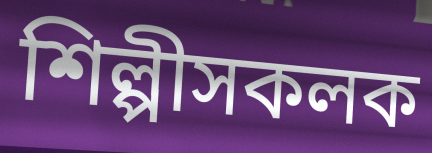
শিল্পীসকলক